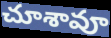
చూశావూ